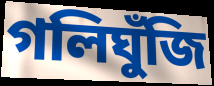
গলিঘুঁজি